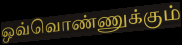
ஒவ்வொண்ணுக்கும்